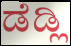
ಡೆಡ್ಲಿ